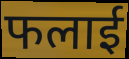
फलाई